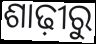
ଶାଢ଼ୀରୁ